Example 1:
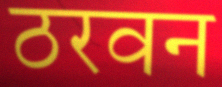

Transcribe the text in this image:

ठरवन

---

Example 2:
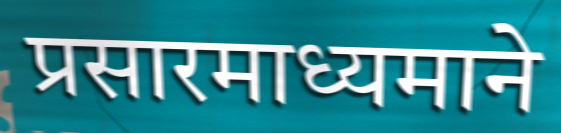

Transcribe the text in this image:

प्रसारमाध्यमाने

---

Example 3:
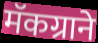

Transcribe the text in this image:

मॅकग्राने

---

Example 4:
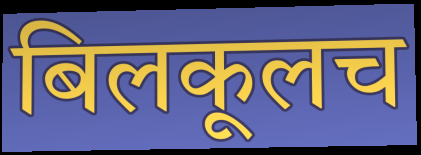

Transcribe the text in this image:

बिलकूलच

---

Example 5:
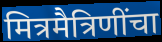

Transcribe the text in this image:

मित्रमैत्रिणींचा